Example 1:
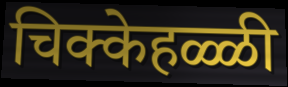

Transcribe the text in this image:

चिक्केहळ्ळी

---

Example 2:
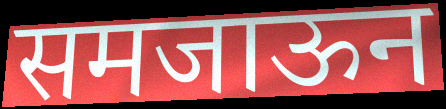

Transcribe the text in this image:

समजाऊन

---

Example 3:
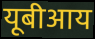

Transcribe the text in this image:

यूबीआय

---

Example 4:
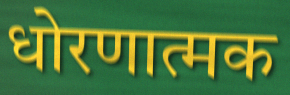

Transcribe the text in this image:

धोरणात्मक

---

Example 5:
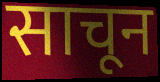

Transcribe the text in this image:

साचून